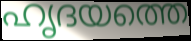
ഹൃദയത്തെ